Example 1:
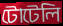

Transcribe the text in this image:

টোটেলি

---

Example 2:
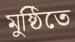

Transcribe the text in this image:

মুষ্ঠিতে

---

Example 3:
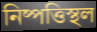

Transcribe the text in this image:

নিষ্পত্তিস্থল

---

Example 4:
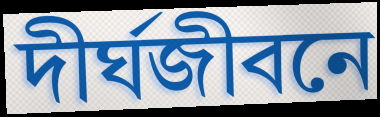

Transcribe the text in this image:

দীর্ঘজীবনে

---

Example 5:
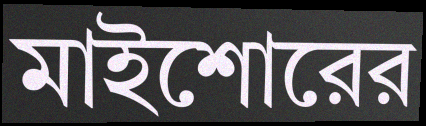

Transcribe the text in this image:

মাইশোরের